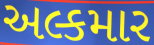
અલ્કમાર